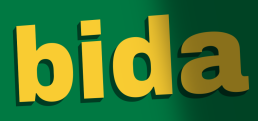
bida